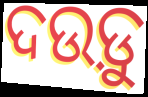
ଦଉଡ଼ୁ